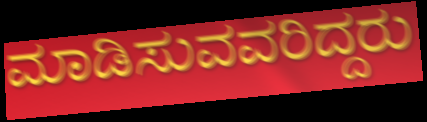
ಮಾಡಿಸುವವರಿದ್ದರು